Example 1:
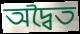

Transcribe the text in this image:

অদ্বৈত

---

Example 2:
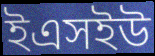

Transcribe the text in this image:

ইএসইউ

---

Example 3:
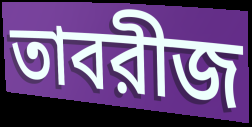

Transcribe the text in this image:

তাবরীজ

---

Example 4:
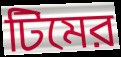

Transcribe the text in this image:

টিমের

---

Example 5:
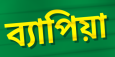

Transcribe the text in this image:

ব্যাপিয়া